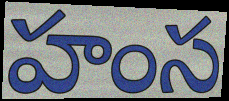
హంస